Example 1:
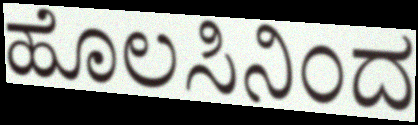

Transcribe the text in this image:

ಹೊಲಸಿನಿಂದ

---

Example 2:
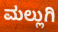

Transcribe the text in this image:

ಮಲ್ಲುಗಿ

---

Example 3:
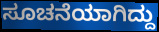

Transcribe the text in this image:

ಸೂಚನೆಯಾಗಿದ್ದು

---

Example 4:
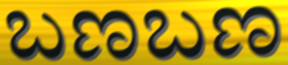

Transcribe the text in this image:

ಬಣಬಣ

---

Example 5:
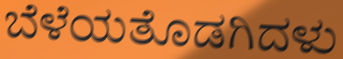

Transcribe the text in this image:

ಬೆಳೆಯತೊಡಗಿದಳು